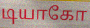
டியாகோ